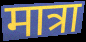
मात्रा